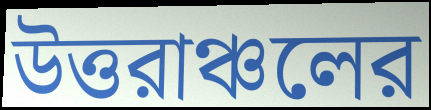
উত্তরাঞ্চলের